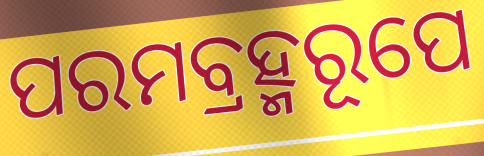
ପରମବ୍ରହ୍ମରୂପେ